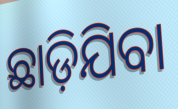
ଛାଡ଼ିଯିବା